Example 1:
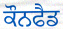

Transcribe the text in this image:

ਕੌਨਫੈਡ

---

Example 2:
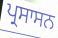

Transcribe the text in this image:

ਪ੍ਰਸਾਸਨ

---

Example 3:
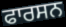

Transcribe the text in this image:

ਫਾਰਸਨ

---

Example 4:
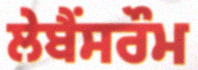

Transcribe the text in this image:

ਲੇਬੈਂਸਰੌਮ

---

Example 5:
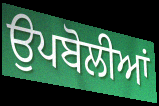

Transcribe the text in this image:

ਉਪਬੋਲੀਆਂ